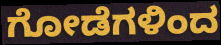
ಗೋಡೆಗಳಿಂದ